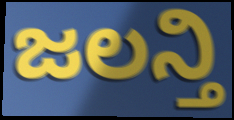
ಜಲನ್ತಿ